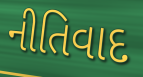
નીતિવાદ